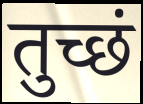
तुच्छं